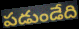
పడుండేది